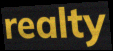
realty